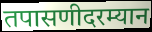
तपासणीदरम्यान